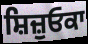
ਸ਼ਿਜ਼ੁਓਕਾ